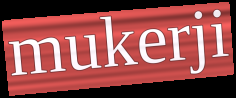
mukerji